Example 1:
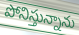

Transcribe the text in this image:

పోనిస్తున్నాను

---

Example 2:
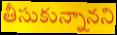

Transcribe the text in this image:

తీసుకున్నానని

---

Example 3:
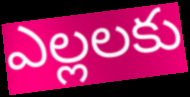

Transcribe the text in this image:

ఎల్లలకు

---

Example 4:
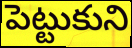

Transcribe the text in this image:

పెట్టుకుని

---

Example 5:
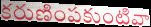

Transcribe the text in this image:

కరుణింపకుంటివా